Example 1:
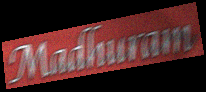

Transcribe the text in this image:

Madhuram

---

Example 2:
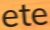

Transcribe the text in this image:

ete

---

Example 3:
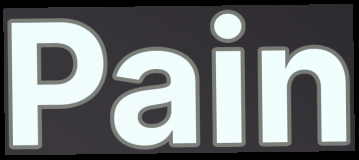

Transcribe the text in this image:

Pain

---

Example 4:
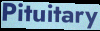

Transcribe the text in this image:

Pituitary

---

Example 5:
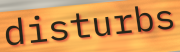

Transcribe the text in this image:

disturbs